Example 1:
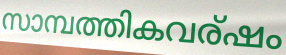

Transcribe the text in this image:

സാമ്പത്തികവര്ഷം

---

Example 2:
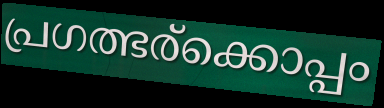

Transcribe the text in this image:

പ്രഗത്ഭര്ക്കൊപ്പം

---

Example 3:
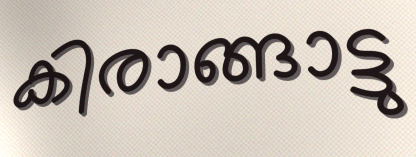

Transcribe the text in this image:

കിരാങ്ങാട്ടു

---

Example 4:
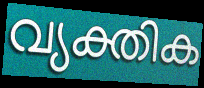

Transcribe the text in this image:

വ്യക്തിക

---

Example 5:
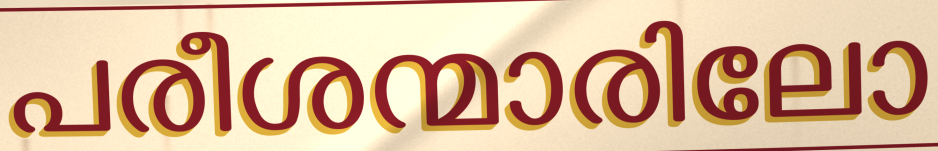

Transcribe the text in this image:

പരീശന്മാരിലോ